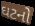
ઘટનો